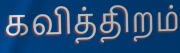
கவித்திறம்